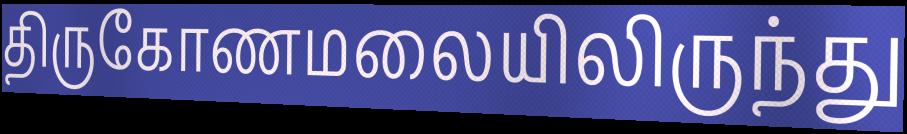
திருகோணமலையிலிருந்து